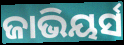
ଜାଭିୟର୍ସ